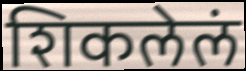
शिकलेलं